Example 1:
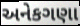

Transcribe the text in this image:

અનેકગણા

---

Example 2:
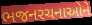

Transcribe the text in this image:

ભજનરચનાઓને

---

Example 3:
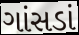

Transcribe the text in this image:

ગાંસડાં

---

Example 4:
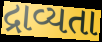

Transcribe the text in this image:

દ્રાવ્યતા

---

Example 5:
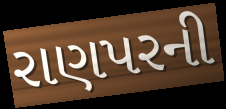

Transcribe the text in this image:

રાણપરની